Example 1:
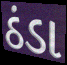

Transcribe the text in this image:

ઠંડા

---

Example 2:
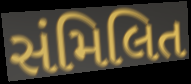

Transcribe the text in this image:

સંમિલિત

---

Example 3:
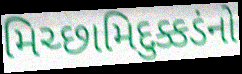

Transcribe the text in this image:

મિચ્છામિદુક્કડંનો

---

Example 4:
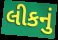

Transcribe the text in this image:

લીકનું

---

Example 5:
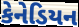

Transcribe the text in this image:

કેનેડિયન